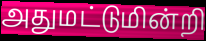
அதுமட்டுமின்றி